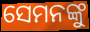
ସେମନଙ୍କୁ